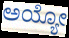
ಅಯ್ಯೋ